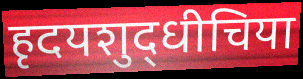
हृदयशुद्धीचिया